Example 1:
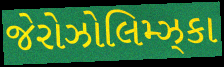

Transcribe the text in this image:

જેરોઝોલિમ્ઝ્કા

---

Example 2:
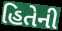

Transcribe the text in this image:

હિતેની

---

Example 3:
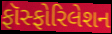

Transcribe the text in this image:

ફૉસ્ફોરિલેશન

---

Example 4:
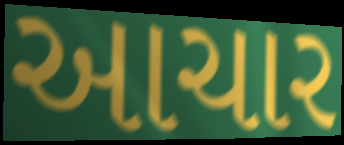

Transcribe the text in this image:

આચાર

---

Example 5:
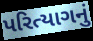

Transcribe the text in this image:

પરિત્યાગનું